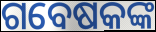
ଗବେଷକଙ୍କ